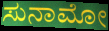
ಸುನಾಮೋ